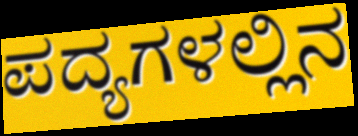
ಪದ್ಯಗಳಲ್ಲಿನ